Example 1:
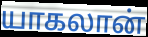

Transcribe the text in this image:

யாகலான்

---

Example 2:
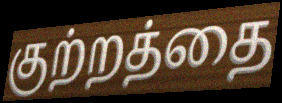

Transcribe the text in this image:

குற்றத்தை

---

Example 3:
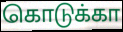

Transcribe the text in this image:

கொடுக்கா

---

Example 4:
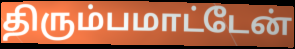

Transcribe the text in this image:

திரும்பமாட்டேன்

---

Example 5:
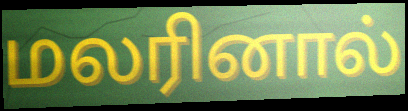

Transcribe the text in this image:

மலரினால்